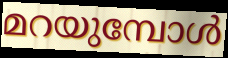
മറയുമ്പോൾ